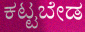
ಕಟ್ಟಬೇಡ